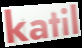
katil